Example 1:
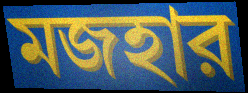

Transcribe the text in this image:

মজহার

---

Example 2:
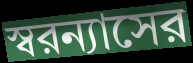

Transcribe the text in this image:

স্বরন্যাসের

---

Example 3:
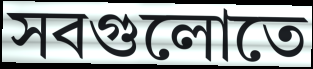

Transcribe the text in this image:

সবগুলোতে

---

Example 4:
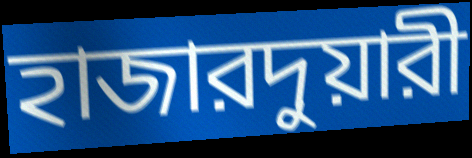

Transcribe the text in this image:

হাজারদুয়ারী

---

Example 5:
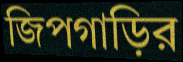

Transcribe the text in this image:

জিপগাড়ির